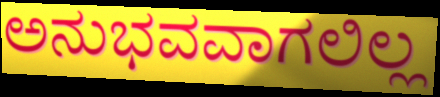
ಅನುಭವವಾಗಲಿಲ್ಲ